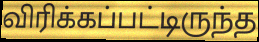
விரிக்கப்பட்டிருந்த